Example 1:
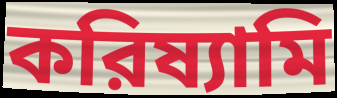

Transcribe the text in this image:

করিষ্যামি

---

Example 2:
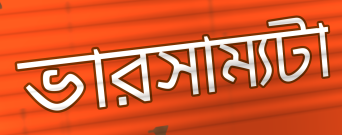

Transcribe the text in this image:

ভারসাম্যটা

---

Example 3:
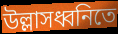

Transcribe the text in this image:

উল্লাসধ্বনিতে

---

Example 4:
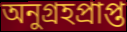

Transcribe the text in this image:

অনুগ্রহপ্রাপ্ত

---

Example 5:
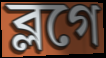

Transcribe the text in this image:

ব্লগে